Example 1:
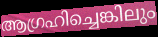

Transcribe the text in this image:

ആഗ്രഹിച്ചെങ്കിലും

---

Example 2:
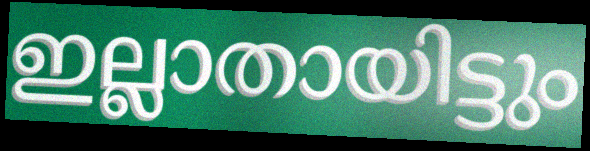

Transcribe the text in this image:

ഇല്ലാതായിട്ടും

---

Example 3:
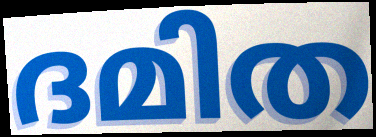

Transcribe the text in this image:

ദമിത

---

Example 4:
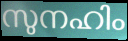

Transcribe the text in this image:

സുനഹിം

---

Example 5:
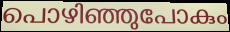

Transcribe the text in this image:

പൊഴിഞ്ഞുപോകും